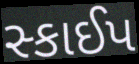
સ્કાઈપ